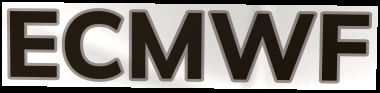
ECMWF